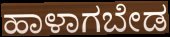
ಹಾಳಾಗಬೇಡ